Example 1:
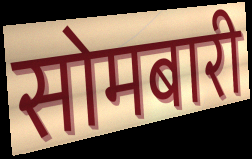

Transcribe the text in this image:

सोमबारी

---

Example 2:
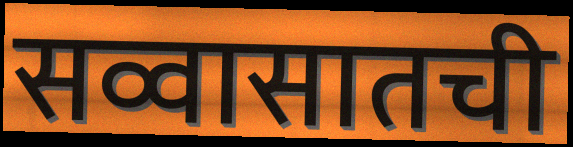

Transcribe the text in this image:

सव्वासातची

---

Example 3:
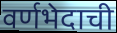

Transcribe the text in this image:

वर्णभेदाची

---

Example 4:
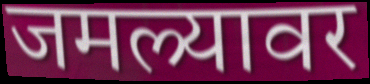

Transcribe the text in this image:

जमल्यावर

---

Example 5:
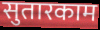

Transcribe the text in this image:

सुतारकाम